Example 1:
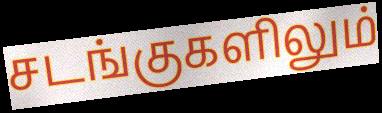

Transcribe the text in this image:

சடங்குகளிலும்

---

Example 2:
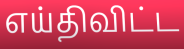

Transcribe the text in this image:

எய்திவிட்ட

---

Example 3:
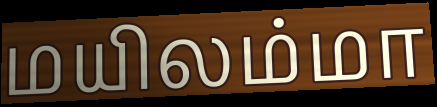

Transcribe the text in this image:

மயிலம்மா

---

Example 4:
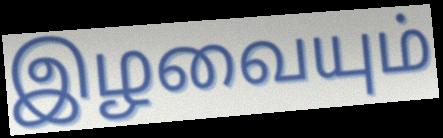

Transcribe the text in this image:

இழவையும்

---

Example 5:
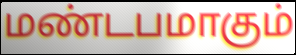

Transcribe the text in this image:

மண்டபமாகும்